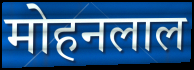
मोहनलाल